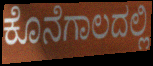
ಕೊನೆಗಾಲದಲ್ಲಿ